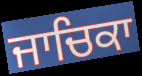
ਜਾਚਿਕਾ